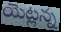
యెట్లన్న